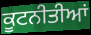
ਕੂਟਨੀਤੀਆਂ